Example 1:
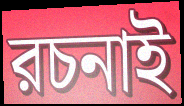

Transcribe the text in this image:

রচনাই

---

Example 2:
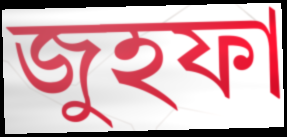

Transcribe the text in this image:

জুহফা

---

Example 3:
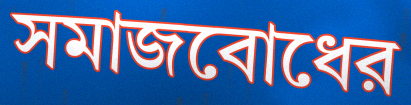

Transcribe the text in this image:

সমাজবোধের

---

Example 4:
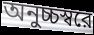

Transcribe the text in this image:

অনুচ্চস্বরে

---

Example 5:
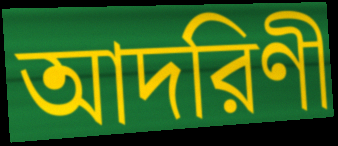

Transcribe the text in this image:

আদরিণী